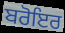
ਬਰੋਇਰ